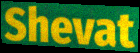
Shevat